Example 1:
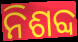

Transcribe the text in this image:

ନିଶବ୍ଦ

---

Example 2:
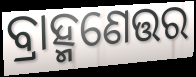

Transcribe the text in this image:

ବ୍ରାହ୍ମଣେତ୍ତର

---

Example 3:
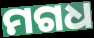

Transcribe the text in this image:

ମଗଧ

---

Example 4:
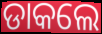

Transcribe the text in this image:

ଡାକଲେ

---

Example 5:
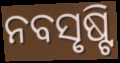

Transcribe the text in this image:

ନବସୃଷ୍ଟି